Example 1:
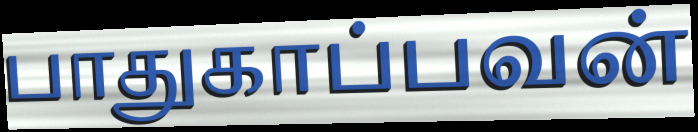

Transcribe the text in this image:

பாதுகாப்பவன்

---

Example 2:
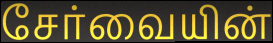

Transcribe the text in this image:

சேர்வையின்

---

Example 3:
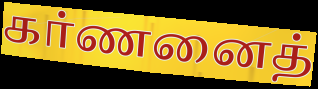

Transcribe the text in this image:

கர்ணனைத்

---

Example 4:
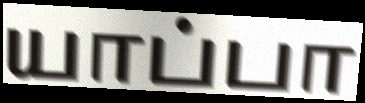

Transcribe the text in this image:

யாப்பா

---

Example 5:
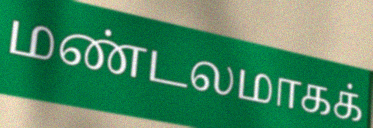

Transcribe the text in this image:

மண்டலமாகக்